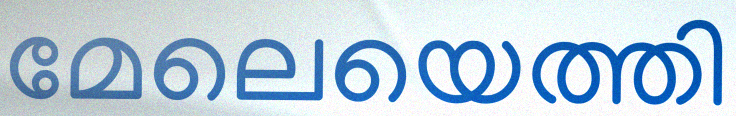
മേലെയെത്തി